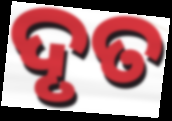
ଦୃତ